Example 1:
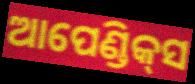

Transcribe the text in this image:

ଆପେଣ୍ଡିକ୍‌ସ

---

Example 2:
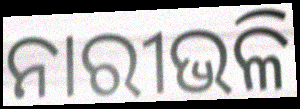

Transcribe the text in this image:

ନାରୀଭଳି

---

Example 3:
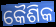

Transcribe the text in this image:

କୈଶିକ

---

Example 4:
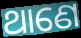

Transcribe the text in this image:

ଥାଣେ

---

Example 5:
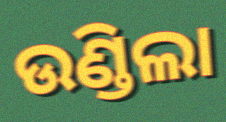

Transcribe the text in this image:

ଉଣ୍ଡିଲା